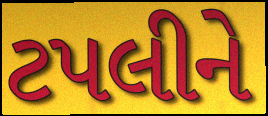
ટપલીને